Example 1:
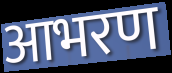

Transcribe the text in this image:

आभरण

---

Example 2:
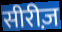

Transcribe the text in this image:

सीरीज़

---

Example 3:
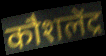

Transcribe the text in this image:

कौशलेंद्र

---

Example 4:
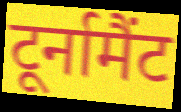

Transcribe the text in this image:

टूर्नामैंट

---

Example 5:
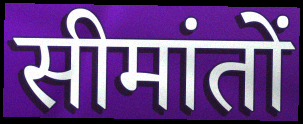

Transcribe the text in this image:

सीमांतों